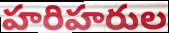
హరిహరుల